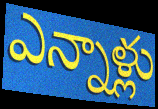
ఎన్నాళ్లు